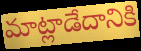
మాట్లాడేదానికి